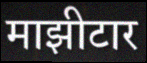
माझीटार